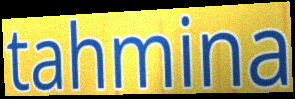
tahmina